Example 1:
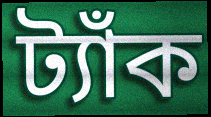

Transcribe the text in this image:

ট্যাঁক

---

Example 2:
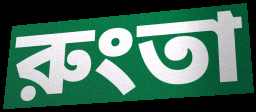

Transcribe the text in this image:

রুংতা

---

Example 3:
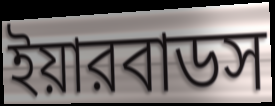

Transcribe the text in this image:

ইয়ারবাডস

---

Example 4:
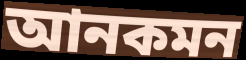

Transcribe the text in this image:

আনকমন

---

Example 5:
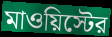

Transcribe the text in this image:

মাওয়িস্টের